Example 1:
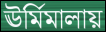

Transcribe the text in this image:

ঊর্মিমালায়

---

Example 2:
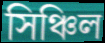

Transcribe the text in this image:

সিঞ্চিল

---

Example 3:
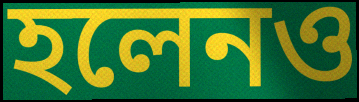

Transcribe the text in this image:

হলেনও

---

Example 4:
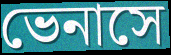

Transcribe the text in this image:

ভেনাসে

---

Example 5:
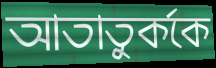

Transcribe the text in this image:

আতাতুর্ককে